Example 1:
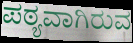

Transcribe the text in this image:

ಪಠ್ಯವಾಗಿರುವ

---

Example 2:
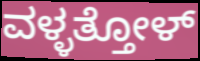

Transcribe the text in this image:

ವಳ್ಳತ್ತೋಳ್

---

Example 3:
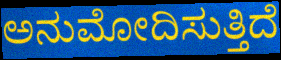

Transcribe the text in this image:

ಅನುಮೋದಿಸುತ್ತಿದೆ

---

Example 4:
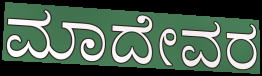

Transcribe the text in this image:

ಮಾದೇವರ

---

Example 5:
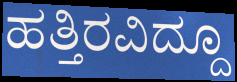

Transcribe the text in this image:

ಹತ್ತಿರವಿದ್ದೂ